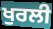
ਖੁਰਲੀ